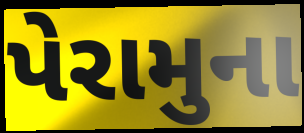
પેરામુના